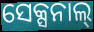
ସେକ୍ସନାଲ୍